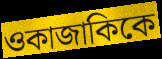
ওকাজাকিকে